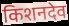
किशनदेव